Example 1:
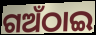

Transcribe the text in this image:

ଗଅଁଠାଇ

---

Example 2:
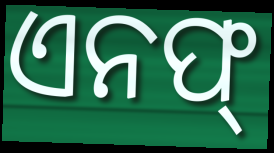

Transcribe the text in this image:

ଏନଫ୍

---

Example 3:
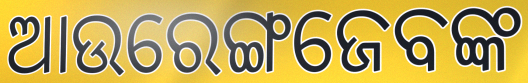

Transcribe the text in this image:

ଆଉରେଙ୍ଗଜେବଙ୍କ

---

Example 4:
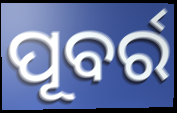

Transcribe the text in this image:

ପୂବର୍ର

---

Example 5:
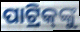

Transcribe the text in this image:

ପାଟ୍ରିକ୍‌ଙ୍କୁ